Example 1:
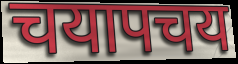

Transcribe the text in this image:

चयापचय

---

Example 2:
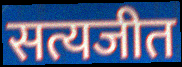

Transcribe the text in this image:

सत्यजीत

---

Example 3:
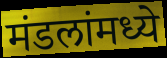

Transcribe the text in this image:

मंडलांमध्ये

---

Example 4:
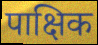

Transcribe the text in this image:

पाक्षिक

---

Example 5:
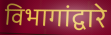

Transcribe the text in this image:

विभागांद्वारे